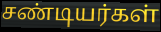
சண்டியர்கள்